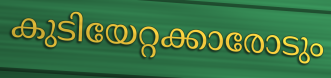
കുടിയേറ്റക്കാരോടും